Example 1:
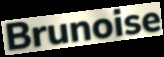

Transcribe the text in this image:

Brunoise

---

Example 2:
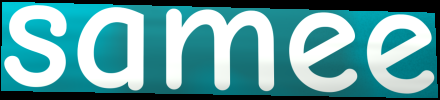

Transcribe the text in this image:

samee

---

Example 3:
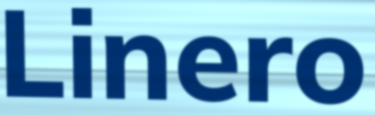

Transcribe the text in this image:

Linero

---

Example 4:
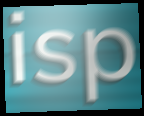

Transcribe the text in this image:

isp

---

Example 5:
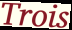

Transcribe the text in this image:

Trois